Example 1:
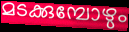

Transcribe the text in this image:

മടക്കുമ്പോഴും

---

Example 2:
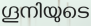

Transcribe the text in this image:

ഗൂനിയുടെ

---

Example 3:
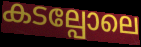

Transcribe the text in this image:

കടല്പോലെ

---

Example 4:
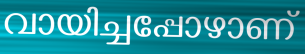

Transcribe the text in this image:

വായിച്ചപ്പോഴാണ്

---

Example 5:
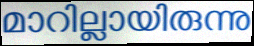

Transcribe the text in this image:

മാറില്ലായിരുന്നു